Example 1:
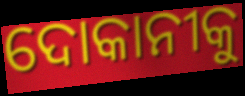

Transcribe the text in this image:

ଦୋକାନୀକୁ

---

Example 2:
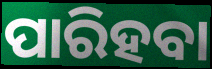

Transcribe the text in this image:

ପାରିହବା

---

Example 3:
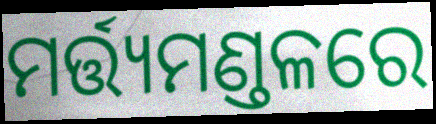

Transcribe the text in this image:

ମର୍ତ୍ତ୍ୟମଣ୍ଡଳରେ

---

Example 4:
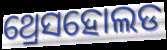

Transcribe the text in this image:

ଥ୍ରେସହୋଲଡ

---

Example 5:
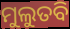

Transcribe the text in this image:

ମୁଲୁତବି